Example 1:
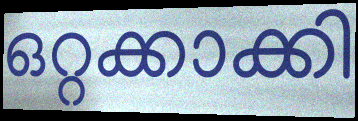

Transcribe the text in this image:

ഒറ്റക്കാക്കി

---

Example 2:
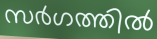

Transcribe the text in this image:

സർഗത്തിൽ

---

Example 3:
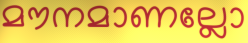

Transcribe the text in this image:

മൗനമാണല്ലോ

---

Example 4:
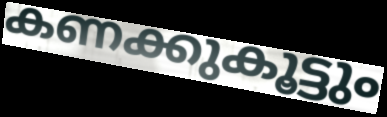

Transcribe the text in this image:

കണക്കുകൂട്ടും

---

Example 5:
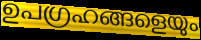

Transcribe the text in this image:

ഉപഗ്രഹങ്ങളെയും